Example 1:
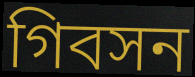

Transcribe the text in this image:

গিবসন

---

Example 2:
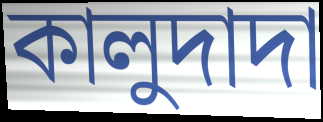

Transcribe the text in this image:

কালুদাদা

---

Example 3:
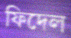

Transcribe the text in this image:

ফিদেল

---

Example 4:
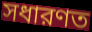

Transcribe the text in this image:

সধারণত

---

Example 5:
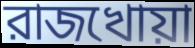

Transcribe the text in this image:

রাজখোয়া